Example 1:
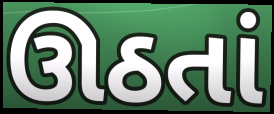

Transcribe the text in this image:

ઊઠતાં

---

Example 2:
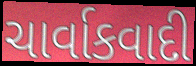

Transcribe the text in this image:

ચાર્વાકવાદી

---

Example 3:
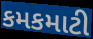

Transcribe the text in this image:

કમકમાટી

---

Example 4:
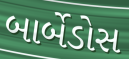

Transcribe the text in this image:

બાર્બેડોસ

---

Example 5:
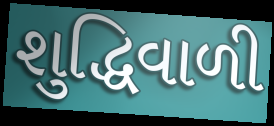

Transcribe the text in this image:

શુદ્ધિવાળી